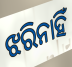
ଝରିନାହିଁ